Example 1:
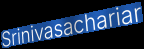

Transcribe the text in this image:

Srinivasachariar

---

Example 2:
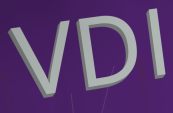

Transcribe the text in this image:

VDI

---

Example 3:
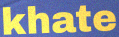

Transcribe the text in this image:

khate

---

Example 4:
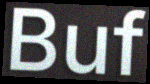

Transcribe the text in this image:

Buf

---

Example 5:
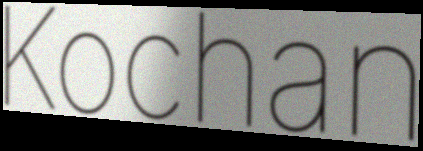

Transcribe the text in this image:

Kochan